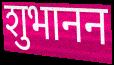
शुभानन